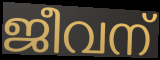
ജീവന്